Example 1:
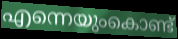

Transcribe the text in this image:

എന്നെയുംകൊണ്ട്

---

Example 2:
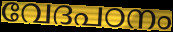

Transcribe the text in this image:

വേദപഠനം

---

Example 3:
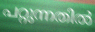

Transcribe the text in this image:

പറ്റുന്നതിൽ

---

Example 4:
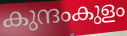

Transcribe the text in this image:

കുന്ദംകുളം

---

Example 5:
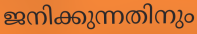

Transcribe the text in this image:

ജനിക്കുന്നതിനും